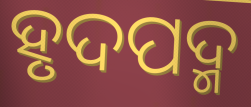
ହୃଦପଦ୍ମ